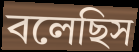
বলেছিস